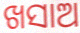
ଖସାଅ